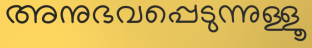
അനുഭവപ്പെടുന്നുള്ളൂ